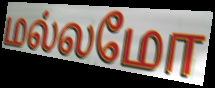
மல்லமோ